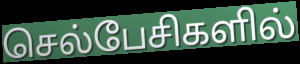
செல்பேசிகளில்